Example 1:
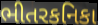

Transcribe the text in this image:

ભીતરકનિકા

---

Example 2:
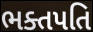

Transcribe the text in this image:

ભક્તપતિ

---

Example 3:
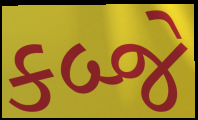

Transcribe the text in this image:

કબ્જે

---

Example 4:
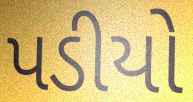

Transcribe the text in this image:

પડીયો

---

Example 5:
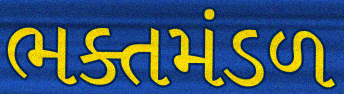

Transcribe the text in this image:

ભક્તમંડળ